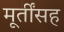
मूर्तींसह